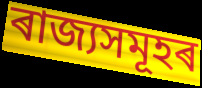
ৰাজ্যসমূহৰ